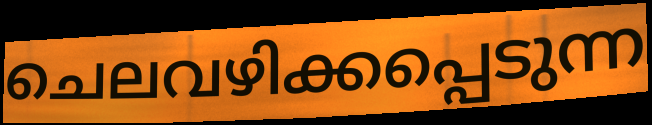
ചെലവഴിക്കപ്പെടുന്ന